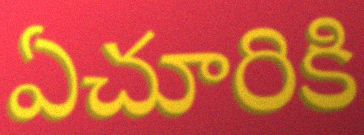
ఏచూరికి